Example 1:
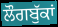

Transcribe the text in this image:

ਲੌਗਬੁੱਕਾਂ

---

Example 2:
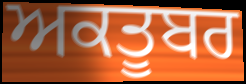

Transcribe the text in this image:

ਅਕਤੂਬਰ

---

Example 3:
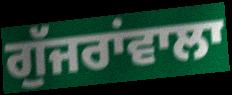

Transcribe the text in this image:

ਗੁੱਜਰਾਂਵਾਲਾ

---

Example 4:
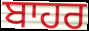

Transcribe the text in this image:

ਬਾਹਰ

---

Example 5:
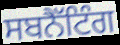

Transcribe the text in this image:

ਸਬਨੈੱਟਿੰਗ